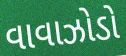
વાવાઝોડો